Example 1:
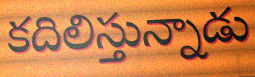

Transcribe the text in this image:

కదిలిస్తున్నాడు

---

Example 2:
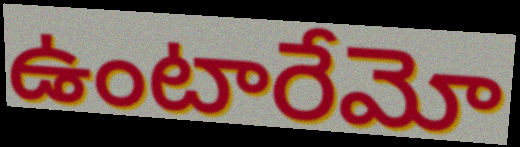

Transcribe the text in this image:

ఉంటారేమో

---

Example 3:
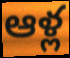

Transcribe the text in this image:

ఆళ్ల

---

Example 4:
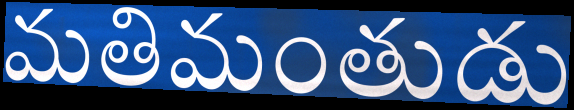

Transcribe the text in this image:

మతిమంతుడు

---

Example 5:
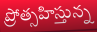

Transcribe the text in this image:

ప్రోత్సహిస్తున్న